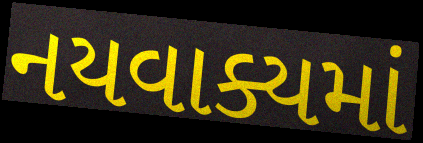
નયવાક્યમાં